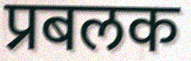
प्रबलक